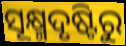
ସୂକ୍ଷ୍ମଦୃଷ୍ଟିରୁ